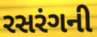
રસરંગની